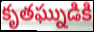
కృతఘ్నుడికి